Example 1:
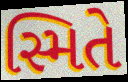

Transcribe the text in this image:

સ્મિતે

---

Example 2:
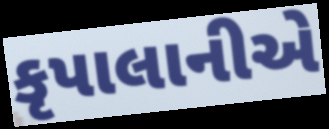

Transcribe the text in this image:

કૃપાલાનીએ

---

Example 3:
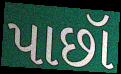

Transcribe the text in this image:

પાછૉ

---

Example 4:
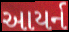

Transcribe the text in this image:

આયર્ન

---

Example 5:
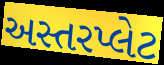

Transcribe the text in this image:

અસ્તરપ્લેટ